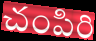
చంపిరి